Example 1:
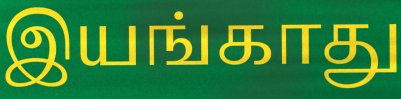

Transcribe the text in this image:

இயங்காது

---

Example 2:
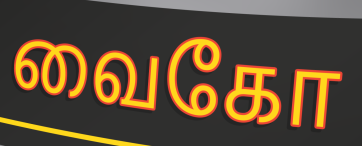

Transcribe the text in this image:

வைகோ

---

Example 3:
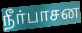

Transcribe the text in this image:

நீர்பாசன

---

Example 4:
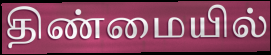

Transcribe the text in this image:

திண்மையில்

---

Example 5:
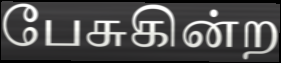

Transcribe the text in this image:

பேசுகின்ற